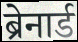
ब्रेनार्ड